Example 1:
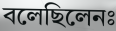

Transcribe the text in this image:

বলেছিলেনঃ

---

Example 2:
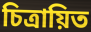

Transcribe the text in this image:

চিত্রায়িত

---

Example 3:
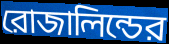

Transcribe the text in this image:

রোজালিন্ডের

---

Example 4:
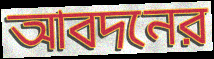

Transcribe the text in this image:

আবদনের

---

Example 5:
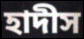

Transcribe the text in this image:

হাদীস